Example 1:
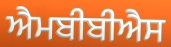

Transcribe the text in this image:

ਐਮਬੀਬੀਐਸ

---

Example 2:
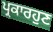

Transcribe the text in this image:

ਪ੍ਰਕਾਰਹੁਣ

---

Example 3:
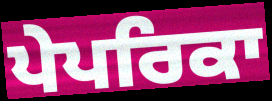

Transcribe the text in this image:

ਪੇਪਰਿਕਾ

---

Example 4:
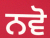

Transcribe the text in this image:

ਨਵੋ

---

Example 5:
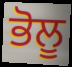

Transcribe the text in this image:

ਭੋਲੂ